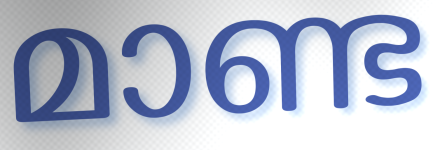
മാണ്ട